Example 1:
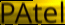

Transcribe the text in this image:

PAtel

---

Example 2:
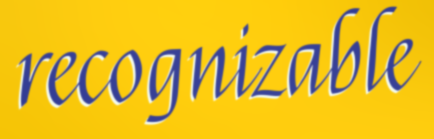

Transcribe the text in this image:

recognizable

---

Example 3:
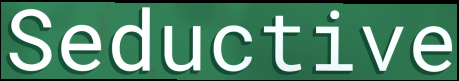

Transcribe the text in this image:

Seductive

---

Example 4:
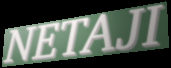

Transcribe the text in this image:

NETAJI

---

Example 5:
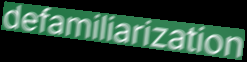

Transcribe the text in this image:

defamiliarization